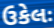
ઉકેલઃ